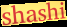
shashi